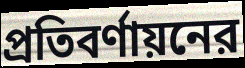
প্রতিবর্ণায়নের